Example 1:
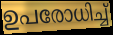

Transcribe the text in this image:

ഉപരോധിച്ച്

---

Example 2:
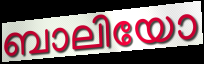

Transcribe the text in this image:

ബാലിയോ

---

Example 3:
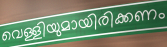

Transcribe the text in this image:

വെള്ളിയുമായിരിക്കണം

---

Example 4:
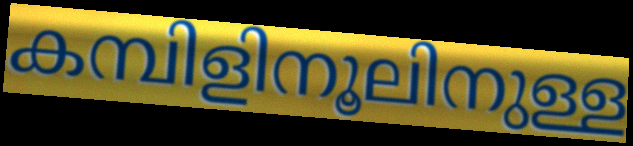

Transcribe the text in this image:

കമ്പിളിനൂലിനുള്ള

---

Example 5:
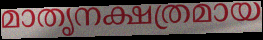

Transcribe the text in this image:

മാതൃനക്ഷത്രമായ